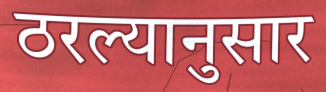
ठरल्यानुसार